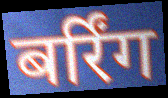
बर्रिंग